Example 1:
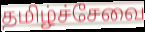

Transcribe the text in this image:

தமிழ்ச்சேவை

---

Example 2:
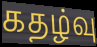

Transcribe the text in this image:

கதழ்வு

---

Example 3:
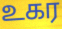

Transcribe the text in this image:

உகர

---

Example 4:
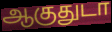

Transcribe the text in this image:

ஆகுதுடா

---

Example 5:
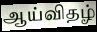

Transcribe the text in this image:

ஆய்விதழ்